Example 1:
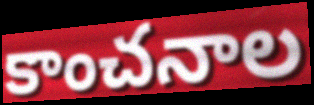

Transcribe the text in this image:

కాంచనాల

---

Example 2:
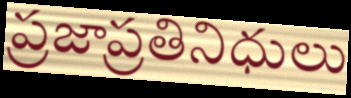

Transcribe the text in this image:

ప్రజాప్రతినిధులు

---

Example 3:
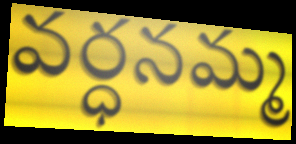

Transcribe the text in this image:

వర్ధనమ్మ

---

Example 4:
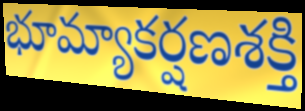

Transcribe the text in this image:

భూమ్యాకర్షణశక్తి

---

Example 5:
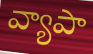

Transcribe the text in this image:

వ్యాపా